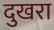
दुखरा